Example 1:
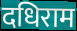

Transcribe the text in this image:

दधिराम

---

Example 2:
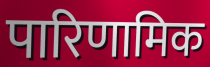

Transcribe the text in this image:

पारिणामिक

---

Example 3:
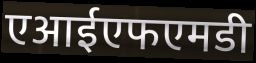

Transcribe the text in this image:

एआईएफएमडी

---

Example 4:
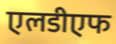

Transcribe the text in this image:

एलडीएफ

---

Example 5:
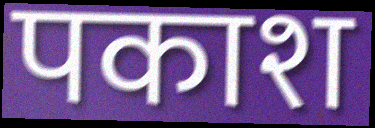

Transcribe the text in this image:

पकाश